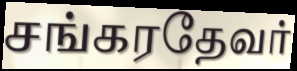
சங்கரதேவர்